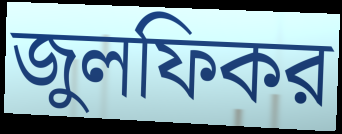
জুলফিকর